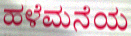
ಹಳೆಮನೆಯ